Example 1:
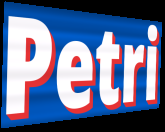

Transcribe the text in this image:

Petri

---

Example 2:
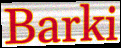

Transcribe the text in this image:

Barki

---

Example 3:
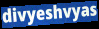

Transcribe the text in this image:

divyeshvyas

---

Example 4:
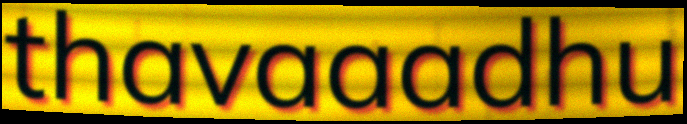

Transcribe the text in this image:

thavaaadhu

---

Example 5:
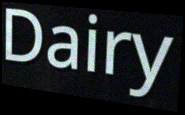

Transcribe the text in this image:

Dairy